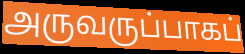
அருவருப்பாகப்